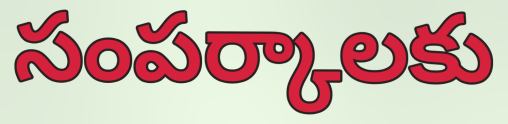
సంపర్కాలకు